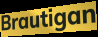
Brautigan